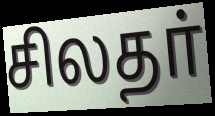
சிலதர்